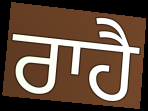
ਰਾਹੈ